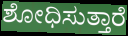
ಶೋಧಿಸುತ್ತಾರೆ